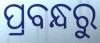
ପ୍ରବନ୍ଧରୁ